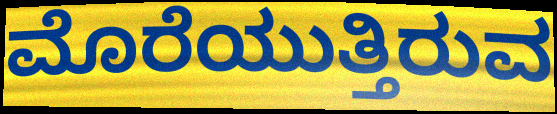
ಮೊರೆಯುತ್ತಿರುವ